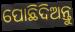
ପୋଛିଦିଅନ୍ତୁ